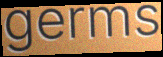
germs